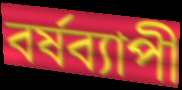
বর্ষব্যাপী